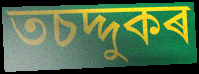
তচদ্দুকৰ